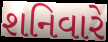
શનિવારે